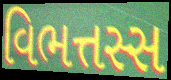
વિભત્તસ્સ